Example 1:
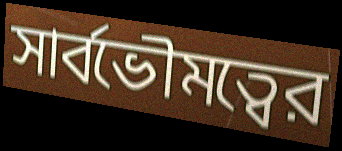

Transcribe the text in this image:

সার্বভৌমত্বের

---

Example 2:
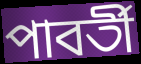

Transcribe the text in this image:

পাবর্তী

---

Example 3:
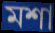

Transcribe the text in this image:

মশা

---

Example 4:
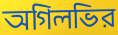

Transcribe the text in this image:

অগিলভির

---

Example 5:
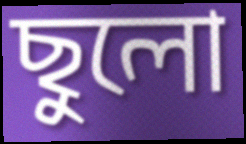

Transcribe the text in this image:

ছুলো